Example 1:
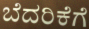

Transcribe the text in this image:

ಬೆದರಿಕೆಗೆ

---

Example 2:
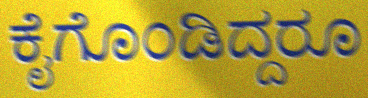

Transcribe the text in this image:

ಕೈಗೊಂಡಿದ್ದರೂ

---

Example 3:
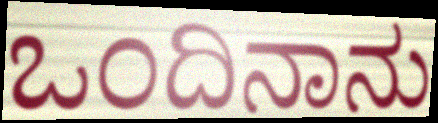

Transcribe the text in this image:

ಒಂದಿನಾನು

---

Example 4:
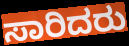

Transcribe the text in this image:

ಸಾರಿದರು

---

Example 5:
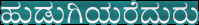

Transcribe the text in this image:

ಹುಡುಗಿಯರೆದುರು